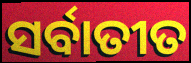
ସର୍ବାତୀତ